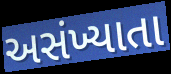
અસંખ્યાતા